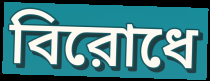
বিরোধে